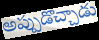
అప్పుడొచ్చాడు